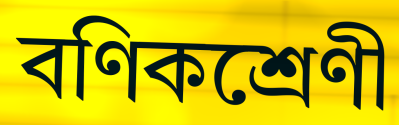
বণিকশ্রেণী